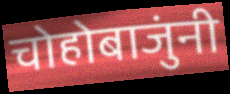
चोहोबाजुंनी